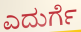
ಎದುರ್ಗೆ